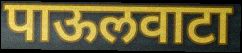
पाऊलवाटा